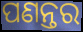
ପଣନ୍ତର